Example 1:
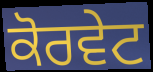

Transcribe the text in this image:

ਕੋਰਵੇਟ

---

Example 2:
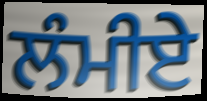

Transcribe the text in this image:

ਲੰਮੀਏ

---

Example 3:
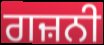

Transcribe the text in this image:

ਗਜ਼ਨੀ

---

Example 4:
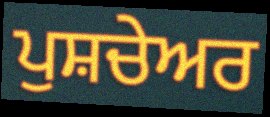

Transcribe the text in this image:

ਪੁਸ਼ਚੇਅਰ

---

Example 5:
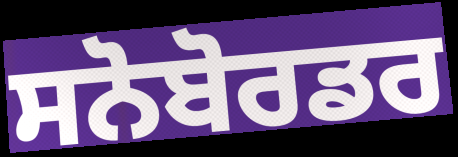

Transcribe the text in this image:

ਸਨੋਬੋਰਡਰ